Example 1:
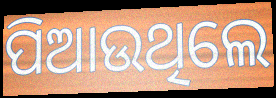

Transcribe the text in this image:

ପିଆଉଥିଲେ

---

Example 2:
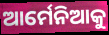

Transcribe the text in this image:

ଆର୍ମେନିଆକୁ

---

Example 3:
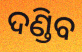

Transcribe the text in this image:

ଦଣ୍ଡିବ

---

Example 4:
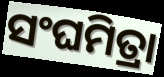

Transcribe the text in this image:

ସଂଘମିତ୍ରା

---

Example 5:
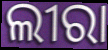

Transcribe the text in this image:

ଲୀରା